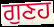
ਗੁਣਹ